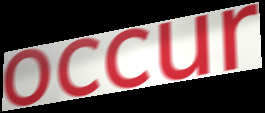
occur